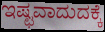
ಇಷ್ಟವಾದುದಕ್ಕೆ